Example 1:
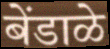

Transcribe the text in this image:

बेंडाळे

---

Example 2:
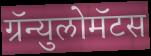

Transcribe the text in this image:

ग्रॅन्युलोमॅटस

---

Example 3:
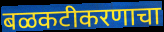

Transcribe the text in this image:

बळकटीकरणाचा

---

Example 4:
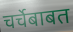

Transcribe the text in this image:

चर्चेबाबत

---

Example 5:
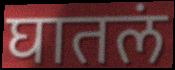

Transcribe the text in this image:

घातलं